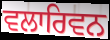
ਵਲਾਰਿਵਨ